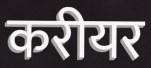
करीयर